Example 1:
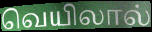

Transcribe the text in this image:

வெயிலால்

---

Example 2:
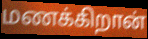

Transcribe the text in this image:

மணக்கிறான்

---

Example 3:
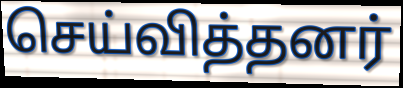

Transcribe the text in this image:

செய்வித்தனர்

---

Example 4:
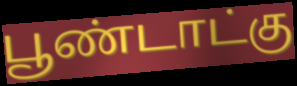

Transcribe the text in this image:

பூண்டாட்கு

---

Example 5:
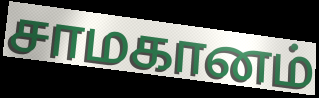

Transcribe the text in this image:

சாமகானம்